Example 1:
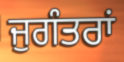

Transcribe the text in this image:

ਜੁਗੰਤਰਾਂ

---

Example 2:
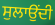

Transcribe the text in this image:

ਸੁਲਾਉਂਦੀ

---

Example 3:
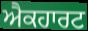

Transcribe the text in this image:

ਐਕਹਾਰਟ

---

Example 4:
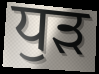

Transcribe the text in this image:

ਧੁੜ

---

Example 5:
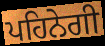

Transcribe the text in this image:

ਪਹਿਨੇਗੀ